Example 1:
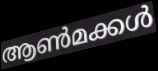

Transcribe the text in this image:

ആൺമക്കൾ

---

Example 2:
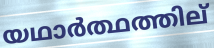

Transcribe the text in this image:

യഥാർത്ഥത്തില്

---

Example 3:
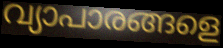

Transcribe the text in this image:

വ്യാപാരങ്ങളെ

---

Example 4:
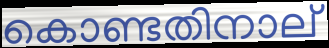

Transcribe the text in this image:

കൊണ്ടതിനാല്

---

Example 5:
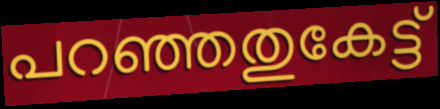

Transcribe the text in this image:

പറഞ്ഞതുകേട്ട്